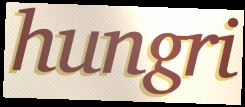
hungri